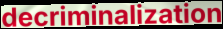
decriminalization